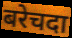
बरेचदा